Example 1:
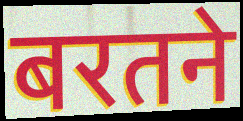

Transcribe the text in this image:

बरतने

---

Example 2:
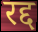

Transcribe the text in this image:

रद्द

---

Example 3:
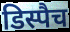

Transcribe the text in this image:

डिस्पैच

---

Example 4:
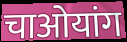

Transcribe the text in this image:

चाओयांग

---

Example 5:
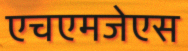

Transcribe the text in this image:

एचएमजेएस